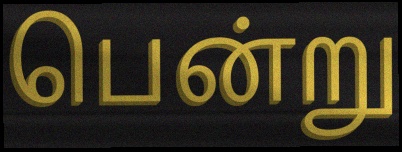
பென்று